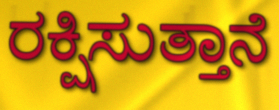
ರಕ್ಷಿಸುತ್ತಾನೆ